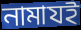
নামাযই